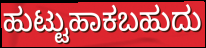
ಹುಟ್ಟುಹಾಕಬಹುದು